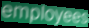
employees